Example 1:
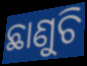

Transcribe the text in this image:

ଛାଣୁଚି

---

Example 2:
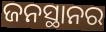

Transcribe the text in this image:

ଜନସ୍ଥାନର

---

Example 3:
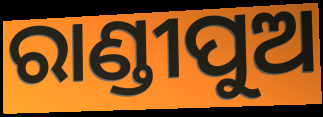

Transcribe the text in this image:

ରାଣ୍ଡୀପୁଅ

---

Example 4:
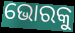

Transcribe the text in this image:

ଭୋରକୁ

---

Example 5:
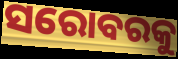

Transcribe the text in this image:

ସରୋବରକୁ